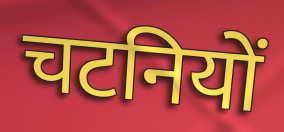
चटनियों